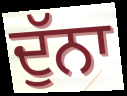
ਦੁੱਨਾ